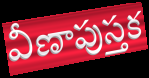
వీణాపుస్తక